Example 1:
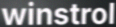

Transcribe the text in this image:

winstrol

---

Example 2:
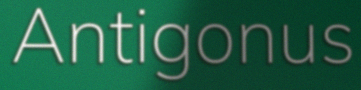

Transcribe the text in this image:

Antigonus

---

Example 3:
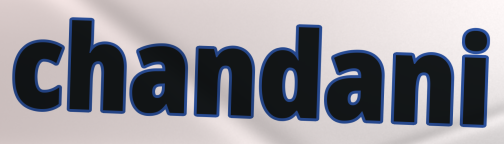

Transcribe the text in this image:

chandani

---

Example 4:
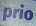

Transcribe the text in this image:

prio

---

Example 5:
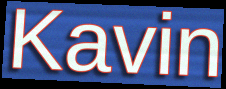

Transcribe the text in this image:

Kavin